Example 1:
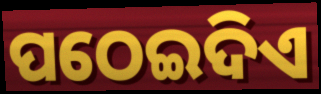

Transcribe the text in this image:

ପଠେଇଦିଏ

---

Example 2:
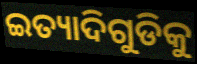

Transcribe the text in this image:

ଇତ୍ୟାଦିଗୁଡିକୁ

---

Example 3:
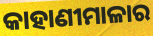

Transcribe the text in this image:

କାହାଣୀମାଳାର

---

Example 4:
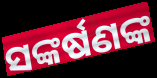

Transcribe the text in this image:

ସଙ୍କର୍ଷଣଙ୍କ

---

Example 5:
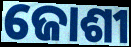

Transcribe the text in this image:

ଜୋଶୀ